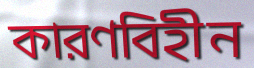
কারণবিহীন